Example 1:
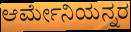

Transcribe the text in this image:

ಆರ್ಮೇನಿಯನ್ನರ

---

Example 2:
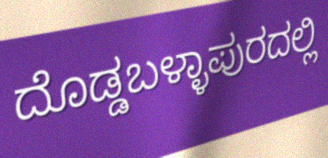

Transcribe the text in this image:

ದೊಡ್ಡಬಳ್ಳಾಪುರದಲ್ಲಿ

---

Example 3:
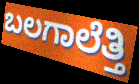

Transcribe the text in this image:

ಬಲಗಾಲೆತ್ತಿ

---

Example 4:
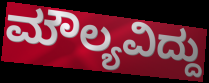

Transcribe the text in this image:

ಮೌಲ್ಯವಿದ್ದು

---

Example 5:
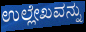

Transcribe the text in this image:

ಉಲ್ಲೇಖವನ್ನು